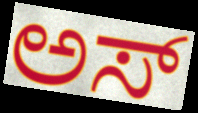
ಅಸ್